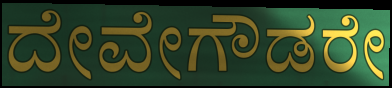
ದೇವೇಗೌಡರೇ